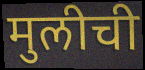
मुलीची